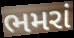
ભમરાં